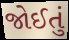
જોઈતું